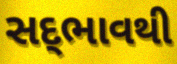
સદ્‍ભાવથી